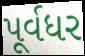
પૂર્વધર